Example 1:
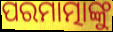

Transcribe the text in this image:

ପରମାତ୍ମାଙ୍କୁ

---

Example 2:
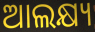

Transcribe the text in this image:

ଆଲକ୍ଷ୍ୟ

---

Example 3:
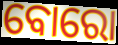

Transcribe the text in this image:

ବୋରୋ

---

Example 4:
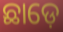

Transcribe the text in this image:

ଛାଡ଼େ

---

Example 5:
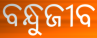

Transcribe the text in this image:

ବନ୍ଧୁଜୀବ